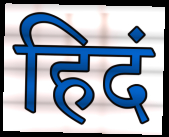
हिदं